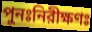
পুনঃনিরীক্ষণঃ